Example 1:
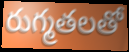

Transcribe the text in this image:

రుగ్మతలతో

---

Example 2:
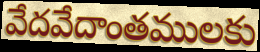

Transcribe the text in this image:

వేదవేదాంతములకు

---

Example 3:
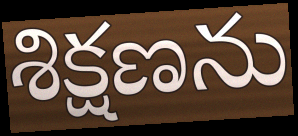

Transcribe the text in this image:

శిక్షణను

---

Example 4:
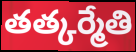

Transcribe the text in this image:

తత్కర్మేతి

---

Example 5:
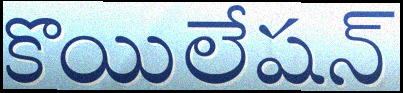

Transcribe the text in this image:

కొయిలేషన్